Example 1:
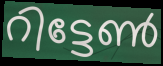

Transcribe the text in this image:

റിട്ടേൺ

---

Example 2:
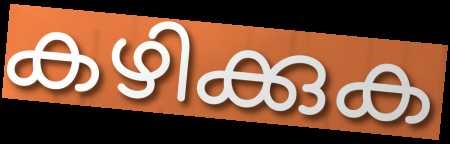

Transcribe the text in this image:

കഴിക്കുക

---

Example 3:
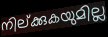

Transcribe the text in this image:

നില്ക്കുകയുമില്ല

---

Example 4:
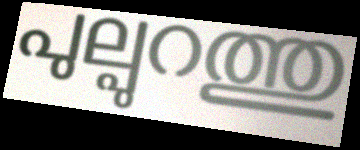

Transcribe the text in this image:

പുല്പുറത്തു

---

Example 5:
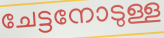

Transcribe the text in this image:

ചേട്ടനോടുള്ള